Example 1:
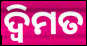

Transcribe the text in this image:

ଦ୍ୱିମତ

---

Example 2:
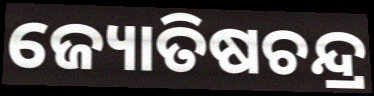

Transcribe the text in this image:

ଜ୍ୟୋତିଷଚନ୍ଦ୍ର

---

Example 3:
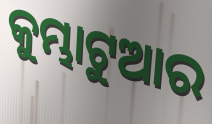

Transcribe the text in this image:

କୁମ୍ଭାଟୁଆର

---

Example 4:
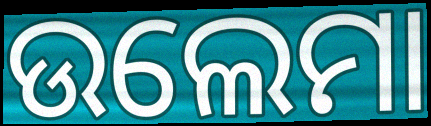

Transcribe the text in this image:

ଉଲେମା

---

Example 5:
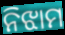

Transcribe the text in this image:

ନିଝାମ